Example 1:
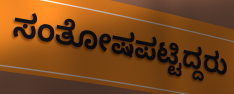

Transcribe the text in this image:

ಸಂತೋಷಪಟ್ಟಿದ್ದರು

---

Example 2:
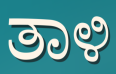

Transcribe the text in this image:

ತಾಳಿ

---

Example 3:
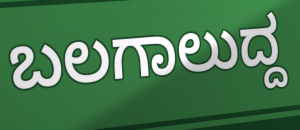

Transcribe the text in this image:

ಬಲಗಾಲುದ್ದ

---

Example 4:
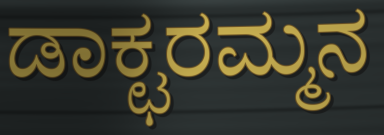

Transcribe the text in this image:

ಡಾಕ್ಟರಮ್ಮನ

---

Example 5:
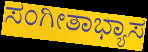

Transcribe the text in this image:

ಸಂಗೀತಾಭ್ಯಾಸ